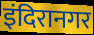
इंदिरानगर